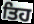
ਤਿਹ